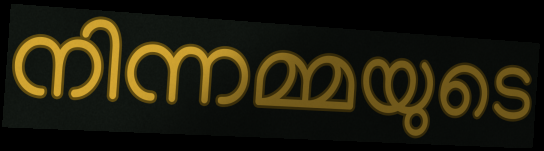
നിന്നമ്മയുടെ